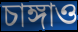
চাঙ্গাও